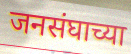
जनसंघाच्या